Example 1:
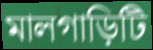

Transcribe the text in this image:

মালগাড়িটি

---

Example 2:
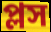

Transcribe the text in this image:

প্লস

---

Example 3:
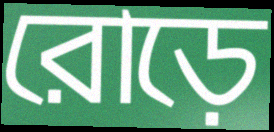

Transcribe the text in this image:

রোড়ে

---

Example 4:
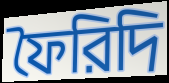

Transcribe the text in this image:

ফৈরিদি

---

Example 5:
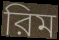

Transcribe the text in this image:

রিম